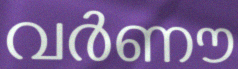
വർണൗ